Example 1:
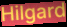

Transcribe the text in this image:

Hilgard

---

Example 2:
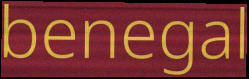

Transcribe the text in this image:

benegal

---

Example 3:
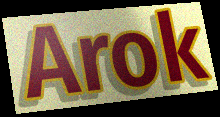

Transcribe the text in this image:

Arok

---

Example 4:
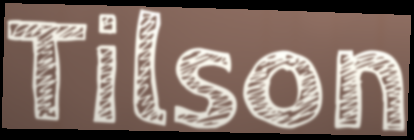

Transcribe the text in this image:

Tilson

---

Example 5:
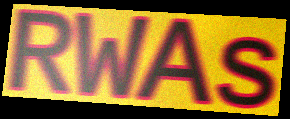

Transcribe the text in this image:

RWAs